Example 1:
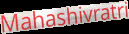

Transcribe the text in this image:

Mahashivratri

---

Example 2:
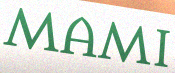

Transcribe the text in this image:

MAMI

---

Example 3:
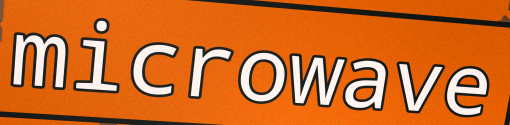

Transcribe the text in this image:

microwave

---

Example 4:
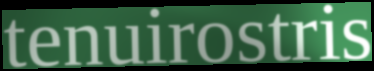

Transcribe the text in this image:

tenuirostris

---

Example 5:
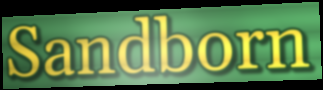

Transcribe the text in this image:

Sandborn